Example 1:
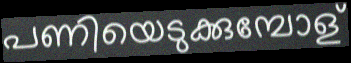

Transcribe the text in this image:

പണിയെടുക്കുമ്പോള്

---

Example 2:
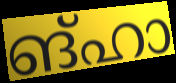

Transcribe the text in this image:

ങ്ഹാ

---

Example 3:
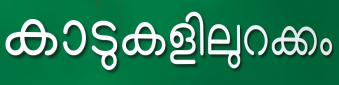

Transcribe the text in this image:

കാടുകളിലുറക്കം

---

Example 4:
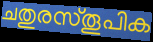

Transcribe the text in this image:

ചതുരസ്തൂപിക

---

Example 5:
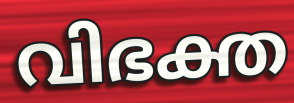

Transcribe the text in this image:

വിഭക്ത